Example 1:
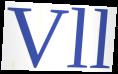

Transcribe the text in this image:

Vll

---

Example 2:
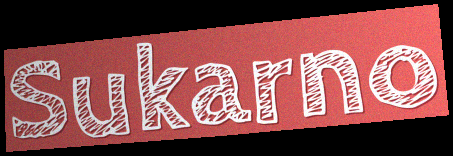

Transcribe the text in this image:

Sukarno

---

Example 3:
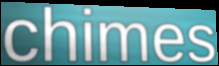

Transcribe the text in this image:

chimes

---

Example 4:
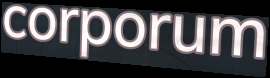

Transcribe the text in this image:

corporum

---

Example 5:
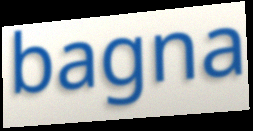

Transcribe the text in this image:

bagna